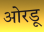
ओरडू